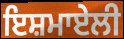
ਇਸ਼ਮਾਏਲੀ